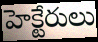
హెక్టేరులు